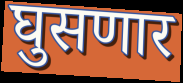
घुसणार